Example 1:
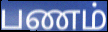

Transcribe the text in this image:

பணம்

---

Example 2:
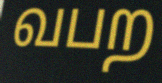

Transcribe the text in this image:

வபற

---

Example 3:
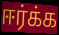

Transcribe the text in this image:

ஈர்க்க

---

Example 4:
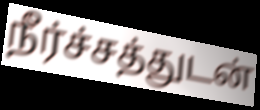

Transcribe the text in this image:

நீர்ச்சத்துடன்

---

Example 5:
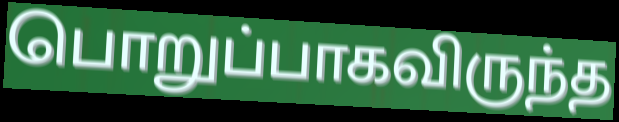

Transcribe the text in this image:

பொறுப்பாகவிருந்த